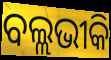
ବଲ୍ଲଭୀକି